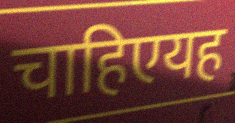
चाहिएयह